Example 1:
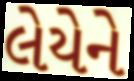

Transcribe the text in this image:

લેયેને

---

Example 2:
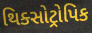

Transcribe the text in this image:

થિક્સોટ્રોપિક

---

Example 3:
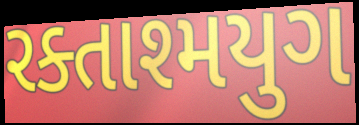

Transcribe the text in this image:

રક્તાશ્મયુગ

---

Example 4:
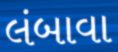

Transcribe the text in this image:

લંબાવા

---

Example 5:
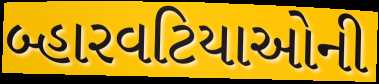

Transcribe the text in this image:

બ્હારવટિયાઓની